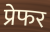
प्रेफर